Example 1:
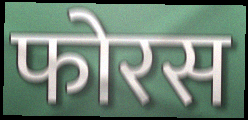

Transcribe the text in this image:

फोरस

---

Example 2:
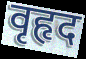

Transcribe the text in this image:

वृहृद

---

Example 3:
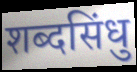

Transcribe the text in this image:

शब्दसिंधु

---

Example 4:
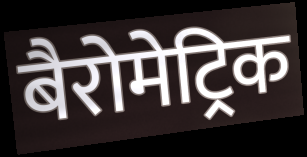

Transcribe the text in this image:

बैरोमेट्रिक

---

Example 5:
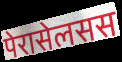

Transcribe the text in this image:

पेरासेलसस